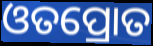
ଓତପ୍ରୋତ